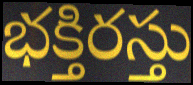
భక్తిరస్తు